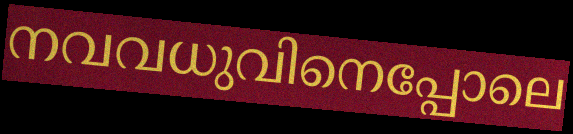
നവവധുവിനെപ്പോലെ